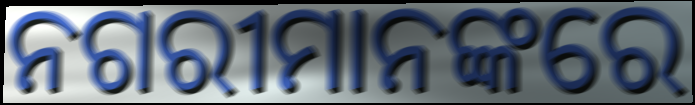
ନଗରୀମାନଙ୍କରେ